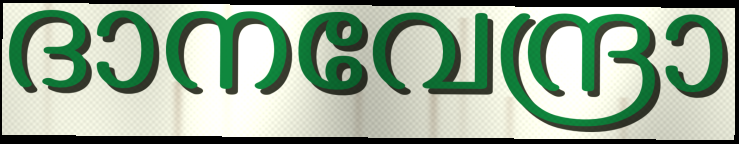
ദാനവേന്ദ്രാ